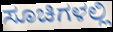
ಸೂಚಿಗಳಲ್ಲಿ